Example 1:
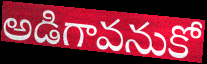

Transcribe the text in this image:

అడిగావనుకో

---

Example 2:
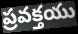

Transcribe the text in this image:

ప్రవక్తయు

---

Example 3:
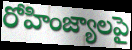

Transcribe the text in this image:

రోహింజ్యాలపై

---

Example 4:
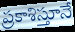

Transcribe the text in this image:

ప్రకాశిస్తూనే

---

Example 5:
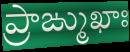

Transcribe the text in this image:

ప్రాఙ్ముఖాః